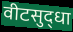
वीटसुद्धा